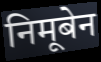
निमूबेन